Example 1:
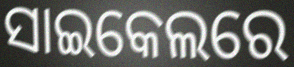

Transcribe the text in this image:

ସାଇକେଲରେ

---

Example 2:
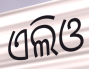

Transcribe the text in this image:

ଏଲିଓ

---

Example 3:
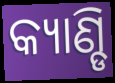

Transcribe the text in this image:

କ୍ୟାଣ୍ଡି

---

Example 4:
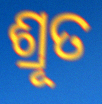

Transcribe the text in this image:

ଶ୍ରୂତ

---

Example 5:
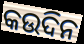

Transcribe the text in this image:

କଉଦିନ